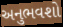
અનુભવશો